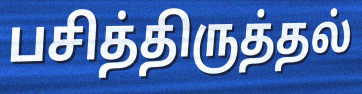
பசித்திருத்தல்